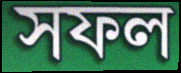
সফল